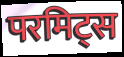
परमिट्स